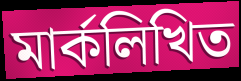
মার্কলিখিত